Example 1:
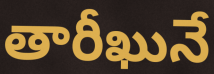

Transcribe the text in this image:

తారీఖునే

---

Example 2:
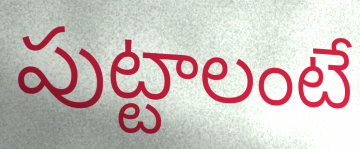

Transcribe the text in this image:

పుట్టాలంటే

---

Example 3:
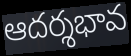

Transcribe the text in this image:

ఆదర్శభావ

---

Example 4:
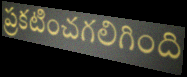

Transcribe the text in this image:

ప్రకటించగలిగింది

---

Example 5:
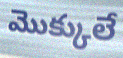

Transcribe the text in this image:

మొక్కులే